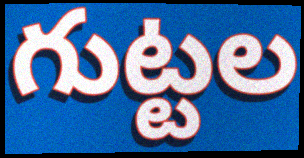
గుట్టల